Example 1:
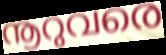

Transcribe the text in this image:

നൂറുവരെ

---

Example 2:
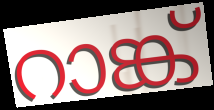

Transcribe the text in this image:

റാങ്ക്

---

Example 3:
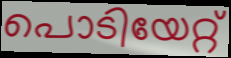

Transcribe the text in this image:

പൊടിയേറ്റ്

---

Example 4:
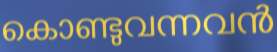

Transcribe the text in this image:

കൊണ്ടുവന്നവൻ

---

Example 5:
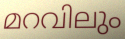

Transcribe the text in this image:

മറവിലും